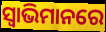
ସ୍ୱାଭିମାନରେ